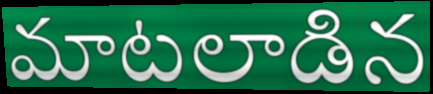
మాటలాడిన